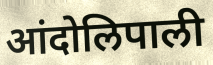
आंदोलिपाली